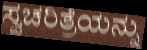
ಸ್ವಚರಿತ್ರೆಯನ್ನು